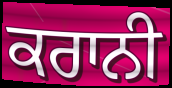
ਕਰਾਨੀ